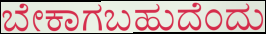
ಬೇಕಾಗಬಹುದೆಂದು